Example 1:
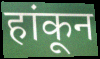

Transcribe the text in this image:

हांकून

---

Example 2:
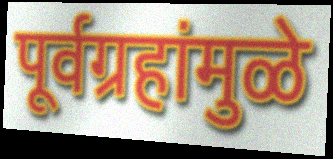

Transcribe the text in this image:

पूर्वग्रहांमुळे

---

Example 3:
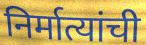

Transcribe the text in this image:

निर्मात्यांची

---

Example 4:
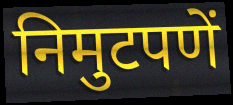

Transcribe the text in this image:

निमुटपणें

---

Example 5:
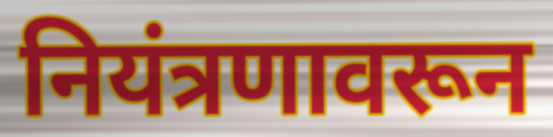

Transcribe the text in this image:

नियंत्रणावरून